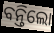
ବନ୍ତିଲୋ